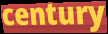
century